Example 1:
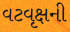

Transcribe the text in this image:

વટવૃક્ષની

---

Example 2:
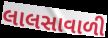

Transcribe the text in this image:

લાલસાવાળી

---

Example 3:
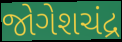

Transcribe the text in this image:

જોગેશચંદ્ર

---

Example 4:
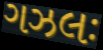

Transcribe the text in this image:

ગઝલઃ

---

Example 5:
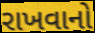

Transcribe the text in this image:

રાખવાનો